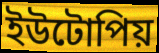
ইউটোপিয়